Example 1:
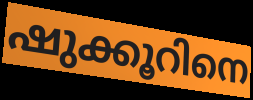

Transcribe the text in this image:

ഷുക്കൂറിനെ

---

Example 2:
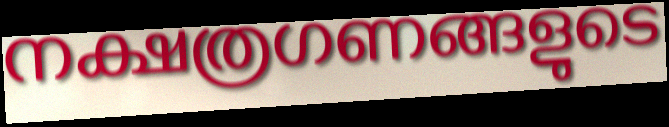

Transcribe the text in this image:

നക്ഷത്രഗണങ്ങളുടെ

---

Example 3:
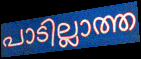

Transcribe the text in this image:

പാടില്ലാത്ത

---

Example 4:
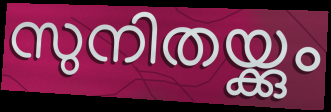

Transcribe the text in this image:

സുനിതയ്ക്കും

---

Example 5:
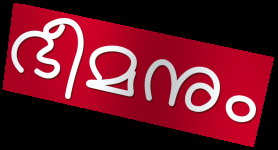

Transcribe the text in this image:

ഭീമനും